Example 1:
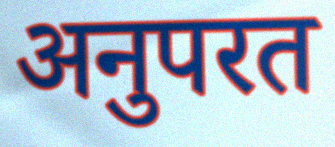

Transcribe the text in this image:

अनुपरत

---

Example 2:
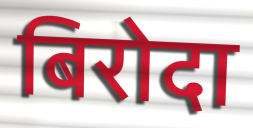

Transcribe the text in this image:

बिरोदा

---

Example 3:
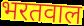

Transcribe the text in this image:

भरतवाल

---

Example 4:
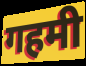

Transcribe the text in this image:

गहमी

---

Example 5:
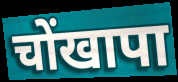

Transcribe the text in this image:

चोंखापा